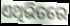
ଏଥିଭିତରେ